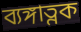
ব্যঙ্গাত্নক